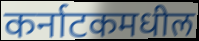
कर्नाटकमधील